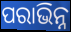
ପରାଭିନ୍ନ